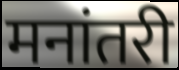
मनांतरी